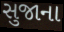
સુજાના